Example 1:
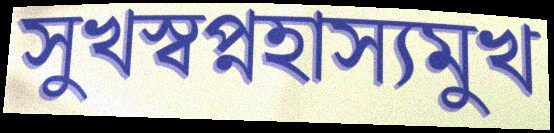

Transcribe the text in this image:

সুখস্বপ্নহাস্যমুখ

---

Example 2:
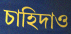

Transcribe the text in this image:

চাহিদাও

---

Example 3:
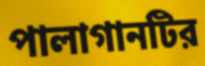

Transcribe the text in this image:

পালাগানটির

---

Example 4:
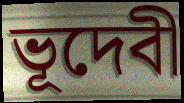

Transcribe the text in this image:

ভূদেবী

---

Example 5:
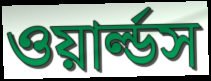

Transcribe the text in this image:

ওয়ার্ল্ডস